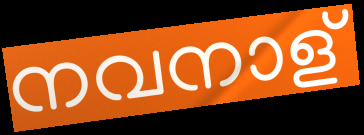
നവനാള്